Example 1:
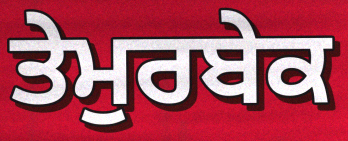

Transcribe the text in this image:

ਤੇਮੁਰਬੇਕ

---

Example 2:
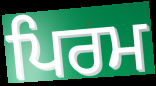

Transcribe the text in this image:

ਪਿਰਮ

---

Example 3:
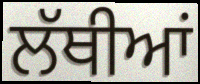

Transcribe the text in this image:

ਲੱਥੀਆਂ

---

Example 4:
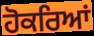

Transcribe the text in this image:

ਹੋਕਰਿਆਂ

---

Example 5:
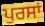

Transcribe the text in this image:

ਪੁਰਸਾਂ